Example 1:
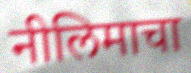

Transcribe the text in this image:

नीलिमाचा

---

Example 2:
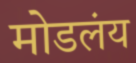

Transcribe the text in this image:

मोडलंय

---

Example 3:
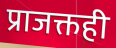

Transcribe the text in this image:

प्राजक्तही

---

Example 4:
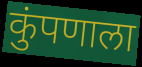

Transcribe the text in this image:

कुंपणाला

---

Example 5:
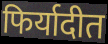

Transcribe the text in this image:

फिर्यादीत